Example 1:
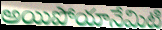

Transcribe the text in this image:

అయిపోయానేమిటి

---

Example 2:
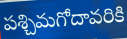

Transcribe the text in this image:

పశ్చిమగోదావరికి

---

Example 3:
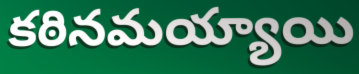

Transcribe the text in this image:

కఠినమయ్యాయి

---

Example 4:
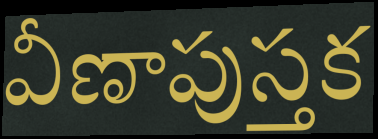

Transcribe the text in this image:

వీణాపుస్తక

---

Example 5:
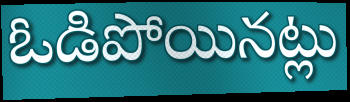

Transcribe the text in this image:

ఓడిపోయినట్లు